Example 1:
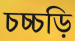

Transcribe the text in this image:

চচ্চড়ি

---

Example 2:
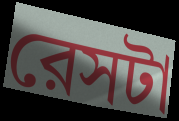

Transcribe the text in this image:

রেসটা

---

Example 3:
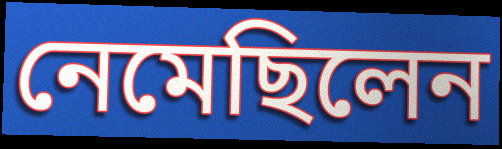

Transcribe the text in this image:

নেমেছিলেন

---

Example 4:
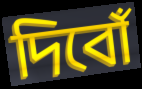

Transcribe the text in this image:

দিবোঁ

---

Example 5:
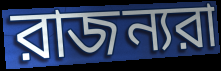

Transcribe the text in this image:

রাজন্যরা